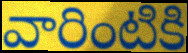
వారింటికి